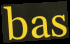
bas